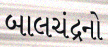
બાલચંદ્રનો